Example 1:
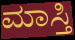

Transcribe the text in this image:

ಮಾಸ್ತಿ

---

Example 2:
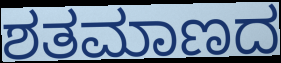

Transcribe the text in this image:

ಶತಮಾಣದ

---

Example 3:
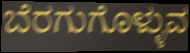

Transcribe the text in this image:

ಬೆರಗುಗೊಳ್ಳುವ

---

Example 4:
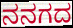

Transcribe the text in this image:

ನನಗದ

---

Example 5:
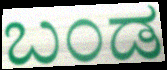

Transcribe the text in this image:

ಬಂಡ